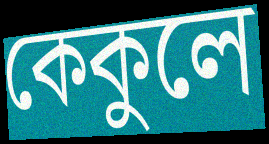
কেকুলে